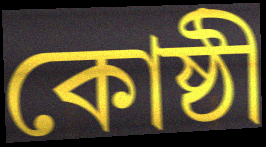
কোষ্ঠী